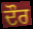
ਦੌਰ